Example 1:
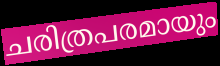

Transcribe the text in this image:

ചരിത്രപരമായും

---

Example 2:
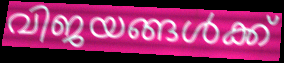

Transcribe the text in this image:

വിജയങ്ങൾക്ക്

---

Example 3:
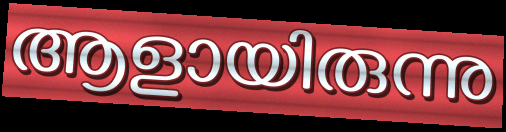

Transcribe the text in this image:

ആളായിരുന്നു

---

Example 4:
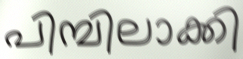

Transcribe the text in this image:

പിമ്പിലാക്കി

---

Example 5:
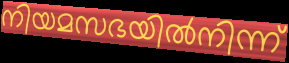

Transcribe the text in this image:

നിയമസഭയിൽനിന്ന്